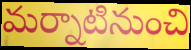
మర్నాటినుంచి